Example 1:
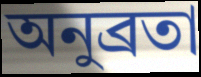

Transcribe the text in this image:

অনুব্রতা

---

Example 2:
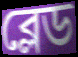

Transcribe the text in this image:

ব্লেড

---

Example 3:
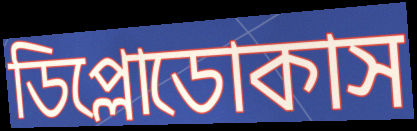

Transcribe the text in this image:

ডিপ্লোডোকাস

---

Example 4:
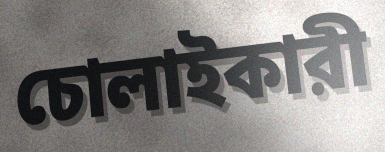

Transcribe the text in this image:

চোলাইকারী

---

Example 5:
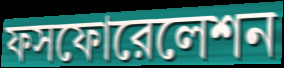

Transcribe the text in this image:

ফসফোরেলেশন